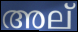
അല്